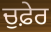
ਚੁਫ਼ੇਰ